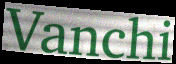
Vanchi